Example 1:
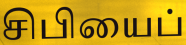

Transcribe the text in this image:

சிபியைப்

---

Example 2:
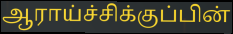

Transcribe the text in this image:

ஆராய்ச்சிக்குப்பின்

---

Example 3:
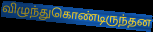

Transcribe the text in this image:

விழுந்துகொண்டிருந்தன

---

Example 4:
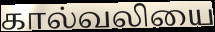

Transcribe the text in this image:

கால்வலியை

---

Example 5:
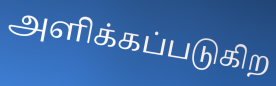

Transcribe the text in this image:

அளிக்கப்படுகிற